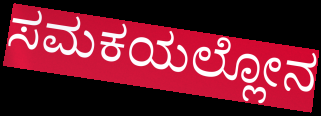
ಸಮಕಯಲ್ಲೋನ